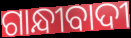
ଗାନ୍ଧୀବାଦୀ